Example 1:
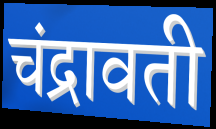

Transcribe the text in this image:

चंद्रावती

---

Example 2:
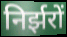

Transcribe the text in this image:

निर्झरों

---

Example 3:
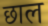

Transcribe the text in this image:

छाल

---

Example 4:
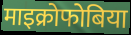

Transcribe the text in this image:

माइक्रोफोबिया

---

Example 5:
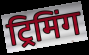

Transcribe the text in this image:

ट्रिमिंग